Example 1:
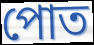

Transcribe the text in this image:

পোত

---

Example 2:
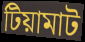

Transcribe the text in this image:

টিয়ামাট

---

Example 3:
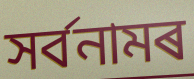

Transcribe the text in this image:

সৰ্বনামৰ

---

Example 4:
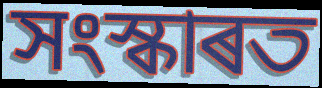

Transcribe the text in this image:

সংস্কাৰত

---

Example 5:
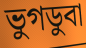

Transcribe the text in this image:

ভুগডুবা